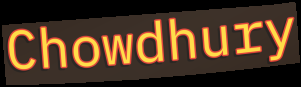
Chowdhury